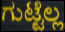
ಗುಟ್ಟೆಲ್ಲ